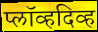
प्लॉव्हदिव्ह